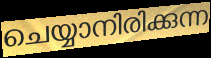
ചെയ്യാനിരിക്കുന്ന